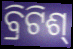
ବ୍ରିଟିଶ୍